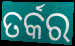
ତର୍କର